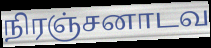
நிரஞ்சனாடவ